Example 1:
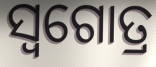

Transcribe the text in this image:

ସ୍ୱଗୋତ୍ର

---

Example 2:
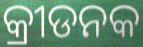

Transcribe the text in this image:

କ୍ରୀଡନକ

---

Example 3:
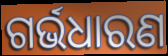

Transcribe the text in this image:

ଗର୍ଭଧାରଣ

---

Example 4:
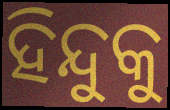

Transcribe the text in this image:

ହିନ୍ଦୁକୁ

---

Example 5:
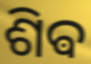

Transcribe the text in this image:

ଶିଵ